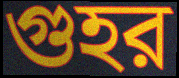
গুহর